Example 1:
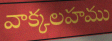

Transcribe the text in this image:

వాక్కలహము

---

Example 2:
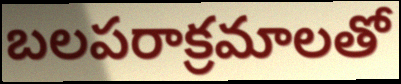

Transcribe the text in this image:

బలపరాక్రమాలతో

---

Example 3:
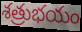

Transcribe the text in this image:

శత్రుభయం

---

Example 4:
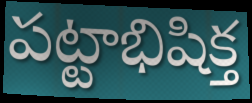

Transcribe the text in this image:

పట్టాభిషిక్త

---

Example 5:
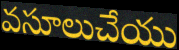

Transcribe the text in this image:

వసూలుచేయు